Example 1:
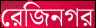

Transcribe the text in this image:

রেজিনগর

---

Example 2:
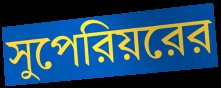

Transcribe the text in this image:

সুপেরিয়রের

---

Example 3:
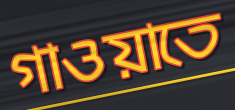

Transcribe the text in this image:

গাওয়াতে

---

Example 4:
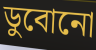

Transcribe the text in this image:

ডুবোনো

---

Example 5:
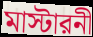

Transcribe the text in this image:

মাস্টারনী